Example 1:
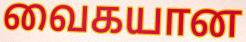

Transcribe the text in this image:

வைகயான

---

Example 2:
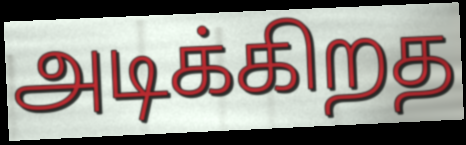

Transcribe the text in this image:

அடிக்கிறத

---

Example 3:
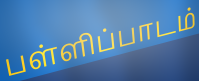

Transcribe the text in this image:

பள்ளிப்பாடம்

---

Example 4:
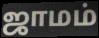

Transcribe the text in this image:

ஜாமம்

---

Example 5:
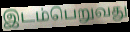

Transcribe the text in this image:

இடம்பெறுவது